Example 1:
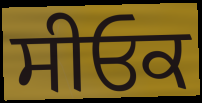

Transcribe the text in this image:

ਸੀਓਕ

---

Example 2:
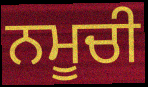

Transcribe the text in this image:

ਨਮੂਚੀ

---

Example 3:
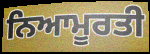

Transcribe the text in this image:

ਨਿਆਮੂਰਤੀ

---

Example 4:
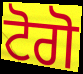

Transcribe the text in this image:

ਟੋਗੋ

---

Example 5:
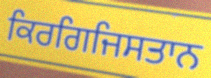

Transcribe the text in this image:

ਕਿਰਗਿਜਿਸਤਾਨ